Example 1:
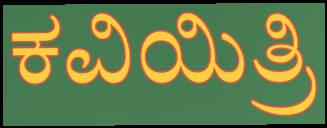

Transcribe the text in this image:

ಕವಿಯಿತ್ರಿ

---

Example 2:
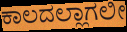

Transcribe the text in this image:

ಕಾಲದಲ್ಲಾಗಲೀ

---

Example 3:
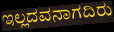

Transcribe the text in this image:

ಇಲ್ಲದವನಾಗದಿರು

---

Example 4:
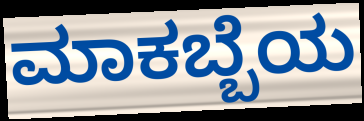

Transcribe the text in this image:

ಮಾಕಬ್ಬೆಯ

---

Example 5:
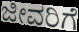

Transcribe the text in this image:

ಜೀವರಿಗೆ